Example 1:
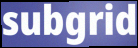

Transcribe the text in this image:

subgrid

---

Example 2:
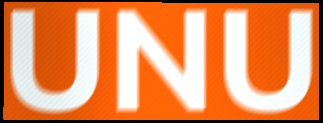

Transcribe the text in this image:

UNU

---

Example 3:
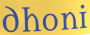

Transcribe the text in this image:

dhoni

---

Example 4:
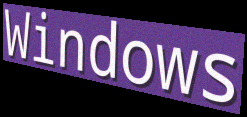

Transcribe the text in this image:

Windows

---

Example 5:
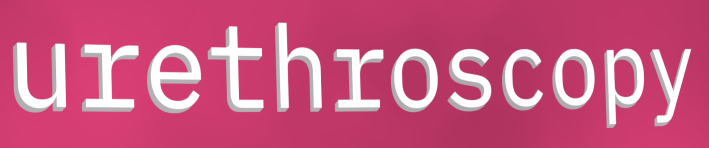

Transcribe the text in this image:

urethroscopy